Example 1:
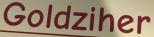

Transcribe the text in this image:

Goldziher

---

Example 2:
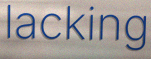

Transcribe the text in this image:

lacking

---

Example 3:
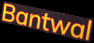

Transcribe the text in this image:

Bantwal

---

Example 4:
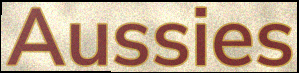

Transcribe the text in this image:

Aussies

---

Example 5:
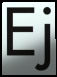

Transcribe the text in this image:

Ej